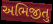
અભિજીતુ